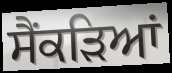
ਸੈਂਕੜਿਆਂ